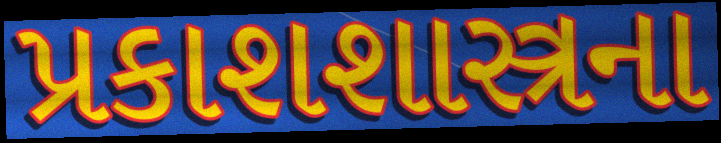
પ્રકાશશાસ્ત્રના